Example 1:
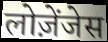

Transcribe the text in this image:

लोज़ेंजेस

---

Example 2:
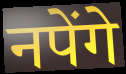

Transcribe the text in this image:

नपेंगे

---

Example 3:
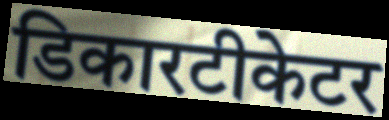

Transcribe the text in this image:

डिकारटीकेटर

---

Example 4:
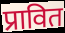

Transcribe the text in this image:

प्रावित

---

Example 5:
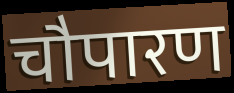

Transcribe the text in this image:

चौपारण